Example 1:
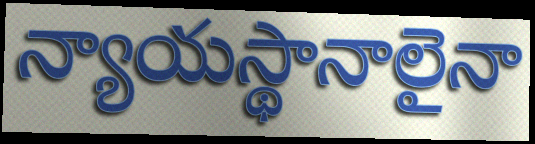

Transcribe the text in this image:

న్యాయస్థానాలైనా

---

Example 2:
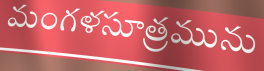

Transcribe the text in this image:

మంగళసూత్రమును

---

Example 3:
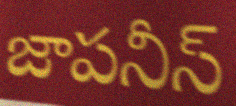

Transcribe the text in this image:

జాపనీస్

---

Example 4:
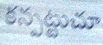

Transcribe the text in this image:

కన్పట్టుచూ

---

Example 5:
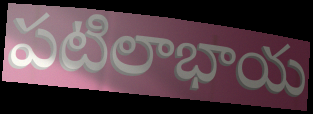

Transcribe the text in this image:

పటిలాభాయ